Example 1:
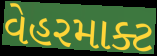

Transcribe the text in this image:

વેહરમાક્ટ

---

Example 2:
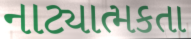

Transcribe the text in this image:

નાટ્યાત્મકતા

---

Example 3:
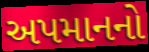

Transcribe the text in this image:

અપમાનનો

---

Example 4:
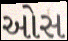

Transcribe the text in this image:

ઓસ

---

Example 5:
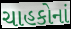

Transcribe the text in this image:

ચાહકોનાં